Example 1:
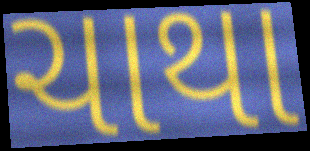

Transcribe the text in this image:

ચાથા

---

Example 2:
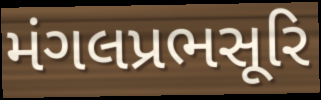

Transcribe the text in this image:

મંગલપ્રભસૂરિ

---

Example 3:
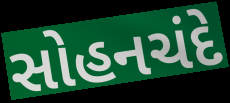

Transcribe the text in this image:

સોહનચંદે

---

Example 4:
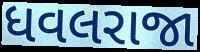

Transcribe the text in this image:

ધવલરાજા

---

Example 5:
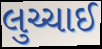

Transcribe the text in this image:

લુચ્ચાઈ